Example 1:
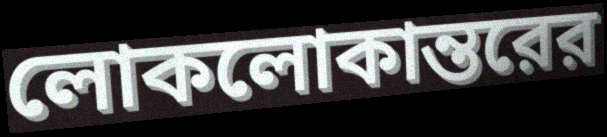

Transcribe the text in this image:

লোকলোকান্তরের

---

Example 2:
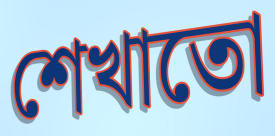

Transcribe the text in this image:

শেখাতো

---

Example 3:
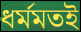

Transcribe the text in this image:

ধর্মমতই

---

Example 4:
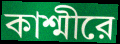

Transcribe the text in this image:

কাশ্মীরে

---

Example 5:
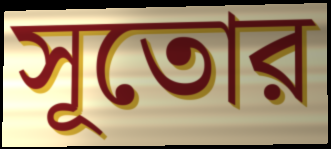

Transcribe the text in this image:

সূতোর